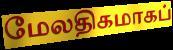
மேலதிகமாகப்